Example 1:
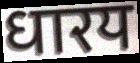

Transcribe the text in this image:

धारय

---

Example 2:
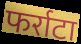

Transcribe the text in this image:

फर्राटा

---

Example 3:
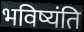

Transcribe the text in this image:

भविष्यंति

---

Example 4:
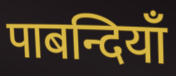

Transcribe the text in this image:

पाबन्दियाँ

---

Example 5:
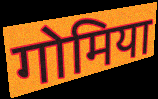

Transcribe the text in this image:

गोमिया